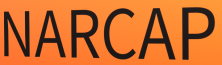
NARCAP